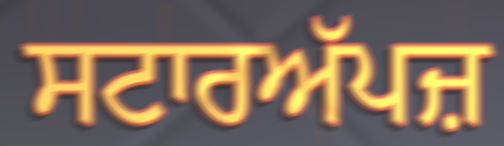
ਸਟਾਰਅੱਪਜ਼